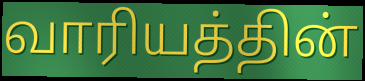
வாரியத்தின்